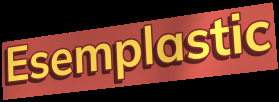
Esemplastic